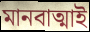
মানবাত্মাই